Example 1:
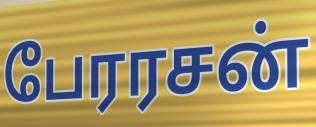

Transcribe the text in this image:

பேரரசன்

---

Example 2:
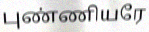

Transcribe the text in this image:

புண்ணியரே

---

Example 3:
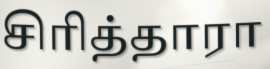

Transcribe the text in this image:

சிரித்தாரா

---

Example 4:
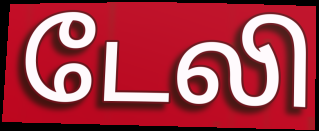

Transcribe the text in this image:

டேலி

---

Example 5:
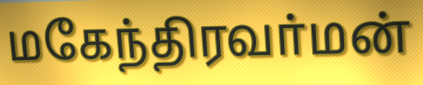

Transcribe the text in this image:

மகேந்திரவர்மன்